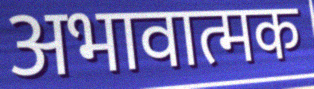
अभावात्मक